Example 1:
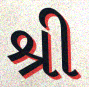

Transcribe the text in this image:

શ્રી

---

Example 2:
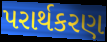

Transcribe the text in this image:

પરાર્થકરણ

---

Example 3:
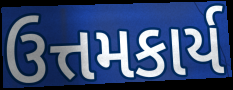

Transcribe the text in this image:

ઉત્તમકાર્ય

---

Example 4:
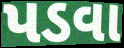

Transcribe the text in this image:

પડવા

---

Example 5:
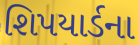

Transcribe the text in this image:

શિપયાર્ડના